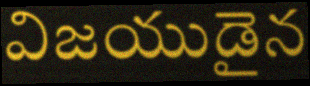
విజయుడైన